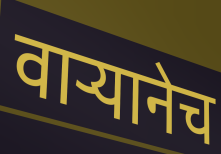
वाऱ्यानेच